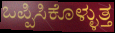
ಒಪ್ಪಿಸಿಕೊಳ್ಳುತ್ತ